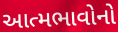
આત્મભાવોનો